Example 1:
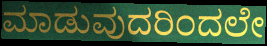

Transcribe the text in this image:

ಮಾಡುವುದರಿಂದಲೇ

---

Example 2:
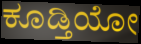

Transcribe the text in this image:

ಕೂಡ್ತಿಯೋ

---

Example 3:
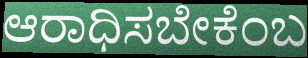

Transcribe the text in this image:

ಆರಾಧಿಸಬೇಕೆಂಬ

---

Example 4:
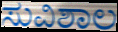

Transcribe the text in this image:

ಸುವಿಶಾಲ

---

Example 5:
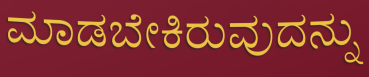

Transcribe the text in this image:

ಮಾಡಬೇಕಿರುವುದನ್ನು